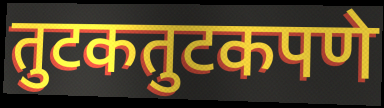
तुटकतुटकपणे